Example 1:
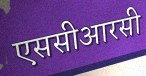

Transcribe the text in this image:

एससीआरसी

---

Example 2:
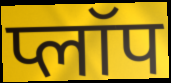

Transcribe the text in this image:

प्लॉप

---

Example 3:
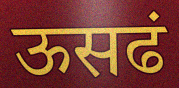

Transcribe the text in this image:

ऊसढं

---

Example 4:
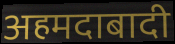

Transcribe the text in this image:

अहमदाबादी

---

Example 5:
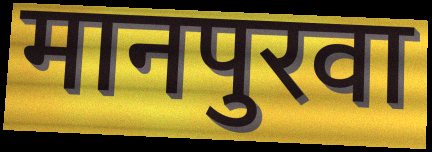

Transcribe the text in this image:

मानपुरवा